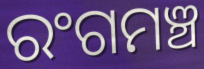
ରଂଗମଞ୍ଚ